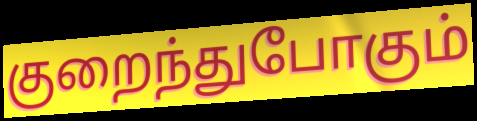
குறைந்துபோகும்